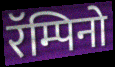
रॅम्पिनो